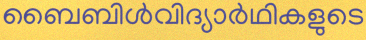
ബൈബിൾവിദ്യാർഥികളുടെ